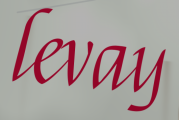
levay